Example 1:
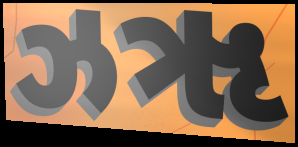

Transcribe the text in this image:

ઝૠ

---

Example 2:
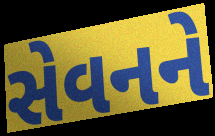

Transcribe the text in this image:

સેવનને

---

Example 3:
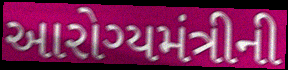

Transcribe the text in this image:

આરોગ્યમંત્રીની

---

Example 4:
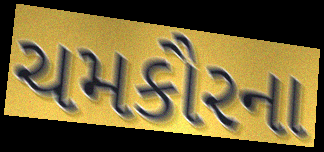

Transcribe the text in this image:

ચમકૌરના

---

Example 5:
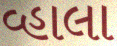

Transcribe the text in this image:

વ્હાલા